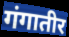
गंगातीर